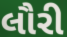
લૌરી